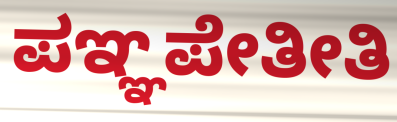
ಪಞ್ಞಪೇತೀತಿ